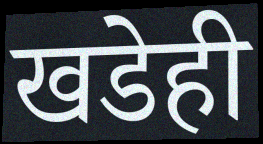
खडेही